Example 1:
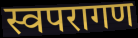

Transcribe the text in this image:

स्वपरागण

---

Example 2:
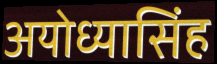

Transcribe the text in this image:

अयोध्यासिंह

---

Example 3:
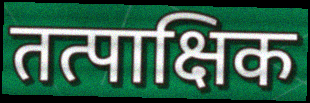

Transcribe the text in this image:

तत्पाक्षिक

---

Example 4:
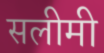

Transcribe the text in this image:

सलीमी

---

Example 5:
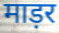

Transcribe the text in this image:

माड़र